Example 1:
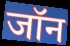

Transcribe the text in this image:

जॉन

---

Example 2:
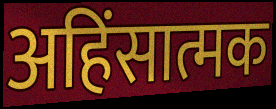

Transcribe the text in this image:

अहिंसात्मक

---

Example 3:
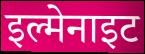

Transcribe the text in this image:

इल्मेनाइट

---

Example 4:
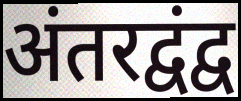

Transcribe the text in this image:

अंतरद्वंद्व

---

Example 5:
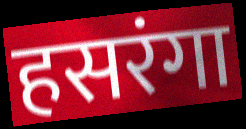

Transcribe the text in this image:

हसरंगा